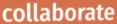
collaborate